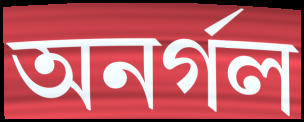
অনর্গল